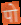
पो